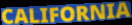
CALIFORNIA